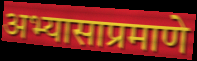
अभ्यासाप्रमाणे